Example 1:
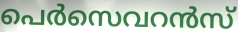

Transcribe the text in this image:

പെർസെവറൻസ്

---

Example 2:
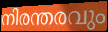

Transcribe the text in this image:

നിരന്തരവും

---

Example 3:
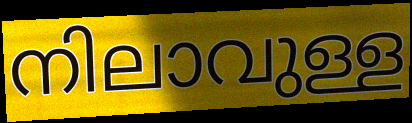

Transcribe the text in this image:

നിലാവുള്ള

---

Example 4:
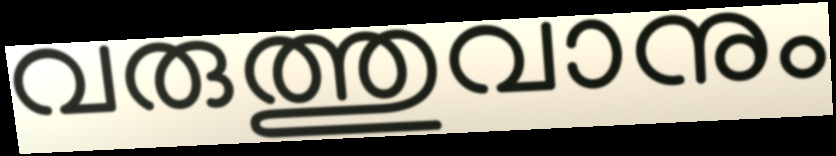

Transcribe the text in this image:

വരുത്തുവാനും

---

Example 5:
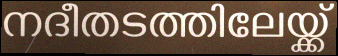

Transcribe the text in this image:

നദീതടത്തിലേയ്ക്ക്